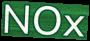
NOx